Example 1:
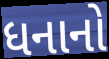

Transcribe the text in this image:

ધનાનો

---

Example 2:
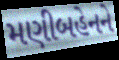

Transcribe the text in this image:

મણીબહેનને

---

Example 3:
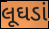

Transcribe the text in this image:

લૂઘડાં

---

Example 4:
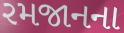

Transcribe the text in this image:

રમજાનના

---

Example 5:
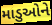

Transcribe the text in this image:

માડુઓને